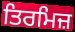
ਤਿਰਮਿਜ਼